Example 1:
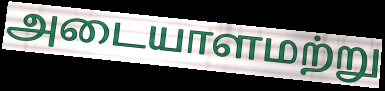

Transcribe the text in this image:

அடையாளமற்று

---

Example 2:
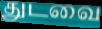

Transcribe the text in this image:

துடவை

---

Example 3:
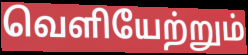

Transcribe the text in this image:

வெளியேற்றும்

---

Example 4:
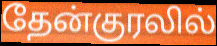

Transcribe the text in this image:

தேன்குரலில்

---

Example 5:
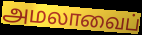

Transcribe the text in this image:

அமலாவைப்